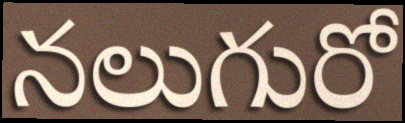
నలుగురో